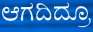
ಆಗದಿದ್ರೂ